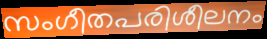
സംഗീതപരിശീലനം